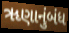
ૠણાનુંબંધ